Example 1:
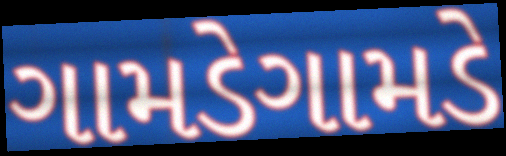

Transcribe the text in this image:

ગામડેગામડે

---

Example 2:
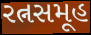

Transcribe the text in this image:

રત્નસમૂહ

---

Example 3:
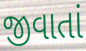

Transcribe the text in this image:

જીવાતાં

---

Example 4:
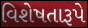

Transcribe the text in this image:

વિશેષતારૂપે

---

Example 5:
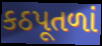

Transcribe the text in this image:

કઠપૂતળાં